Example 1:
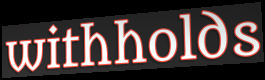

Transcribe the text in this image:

withholds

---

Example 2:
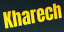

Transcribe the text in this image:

Kharech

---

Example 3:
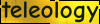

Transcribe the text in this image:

teleology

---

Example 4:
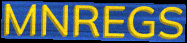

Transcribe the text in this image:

MNREGS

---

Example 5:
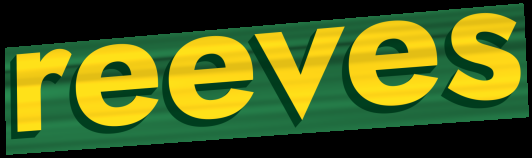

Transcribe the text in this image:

reeves